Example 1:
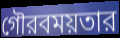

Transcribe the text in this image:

গৌরবময়তার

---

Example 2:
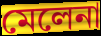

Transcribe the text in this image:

মেলেনা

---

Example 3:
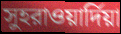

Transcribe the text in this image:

সুহরাওয়ার্দিয়া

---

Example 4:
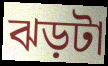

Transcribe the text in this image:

ঝড়টা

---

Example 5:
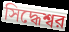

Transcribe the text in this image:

সিদ্ধেশ্বর